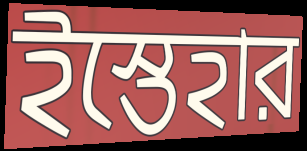
ইস্তেহার